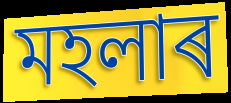
মহলাৰ